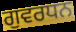
ਗੁਵਰਧਨ